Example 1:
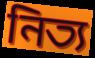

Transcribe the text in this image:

নিত্য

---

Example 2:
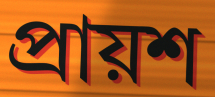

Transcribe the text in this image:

প্রায়শ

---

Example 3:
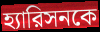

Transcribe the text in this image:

হ্যারিসনকে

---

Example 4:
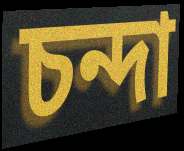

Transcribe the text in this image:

চন্দা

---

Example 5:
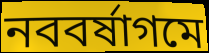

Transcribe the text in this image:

নববর্ষাগমে